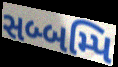
સબ્બમ્પિ